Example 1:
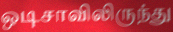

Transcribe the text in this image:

ஒடிசாவிலிருந்து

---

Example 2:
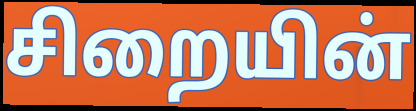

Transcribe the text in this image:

சிறையின்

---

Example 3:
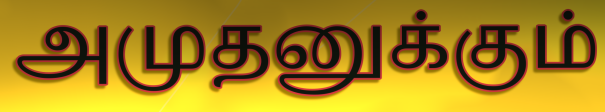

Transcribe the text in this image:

அமுதனுக்கும்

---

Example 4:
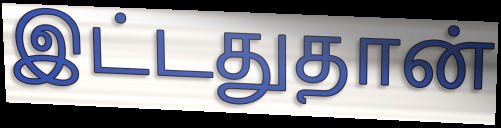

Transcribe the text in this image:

இட்டதுதான்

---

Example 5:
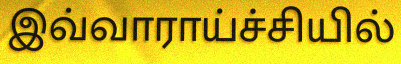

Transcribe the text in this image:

இவ்வாராய்ச்சியில்